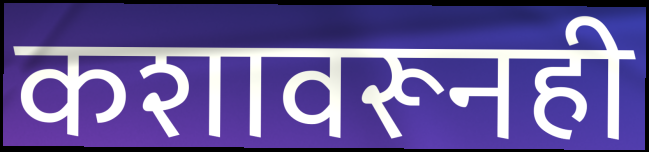
कशावरूनही